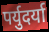
पर्युदर्या